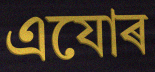
এযোৰ